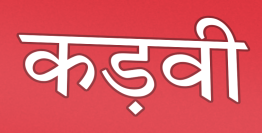
कड़वी